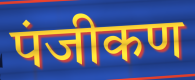
पंजीकण